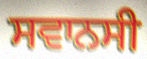
ਸਵਾਨਸੀ